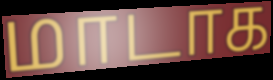
மாடாக